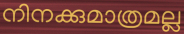
നിനക്കുമാത്രമല്ല